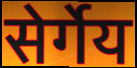
सेर्गेय